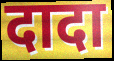
दादा